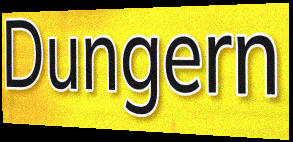
Dungern